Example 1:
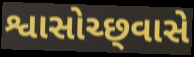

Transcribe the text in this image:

શ્વાસોચ્છ્‍વાસે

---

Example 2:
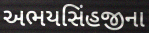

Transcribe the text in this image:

અભયસિંહજીના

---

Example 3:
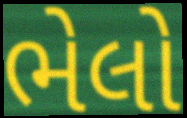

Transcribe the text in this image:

ભેલો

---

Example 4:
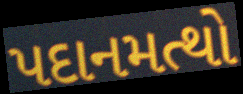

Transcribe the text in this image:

પદાનમત્થો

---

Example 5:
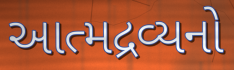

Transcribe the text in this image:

આત્મદ્રવ્યનો